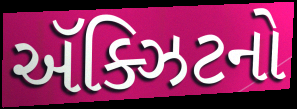
ઍક્ઝિટનો